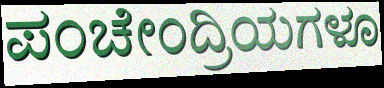
ಪಂಚೇಂದ್ರಿಯಗಳೂ